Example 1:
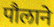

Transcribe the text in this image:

पौलाने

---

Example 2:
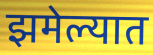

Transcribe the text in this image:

झमेल्यात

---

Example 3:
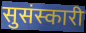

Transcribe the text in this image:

सुसंस्कारी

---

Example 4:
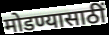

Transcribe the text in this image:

मोडण्यासाठीं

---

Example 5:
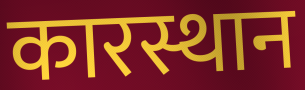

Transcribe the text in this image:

कारस्थान